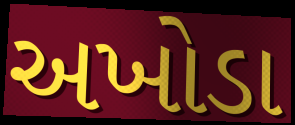
અખોડા